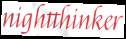
nightthinker